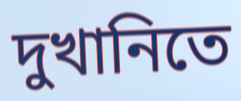
দুখানিতে